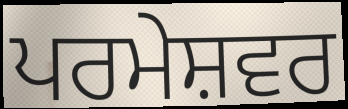
ਪਰਮੇਸ਼ਵਰ